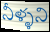
నీళ్ళని